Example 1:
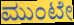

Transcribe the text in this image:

ಮುಂಟೇ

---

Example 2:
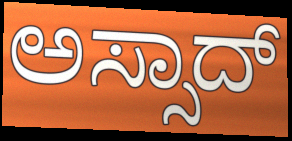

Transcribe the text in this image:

ಅಸ್ಸಾದ್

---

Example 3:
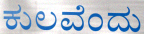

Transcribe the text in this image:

ಕುಲವೆಂದು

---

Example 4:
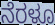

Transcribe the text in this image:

ನೆರಳೂ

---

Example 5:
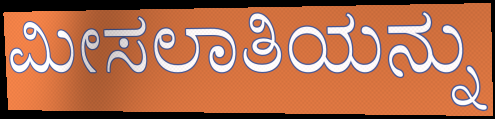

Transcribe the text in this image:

ಮೀಸಲಾತಿಯನ್ನು